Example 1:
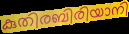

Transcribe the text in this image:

കുതിരബിരിയാനി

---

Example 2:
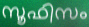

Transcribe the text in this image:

സൂഫിസം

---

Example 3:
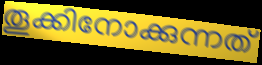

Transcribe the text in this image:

തൂക്കിനോക്കുന്നത്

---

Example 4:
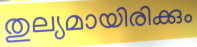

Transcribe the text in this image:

തുല്യമായിരിക്കും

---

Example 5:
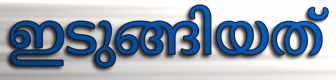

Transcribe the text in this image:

ഇടുങ്ങിയത്